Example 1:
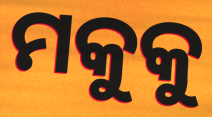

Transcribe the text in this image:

ମକୁକୁ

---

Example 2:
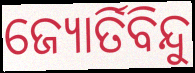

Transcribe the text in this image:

ଜ୍ୟୋର୍ତିବିନ୍ଦୁ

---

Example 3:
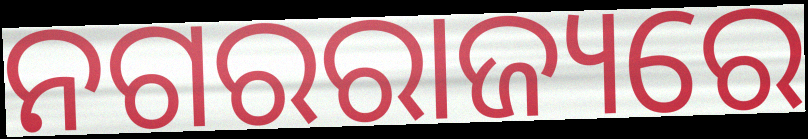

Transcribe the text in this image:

ନଗରରାଜ୍ୟରେ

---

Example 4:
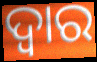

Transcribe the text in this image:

ଦ୍ୱାର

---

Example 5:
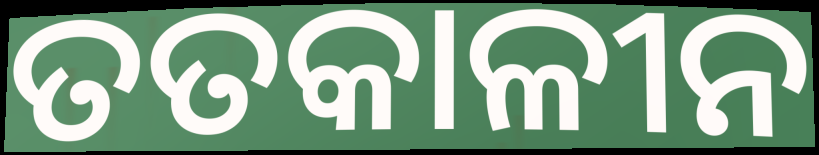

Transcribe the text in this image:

ତତକାଳୀନ